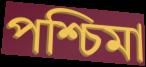
পশ্চিমা